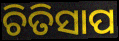
ଚିତିସାପ